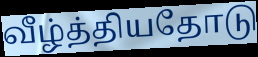
வீழ்த்தியதோடு